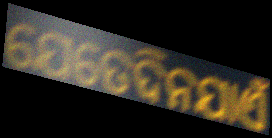
ଯେତେଦିନଯାଏଁ